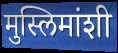
मुस्लिमांशी